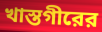
খাস্তগীরের